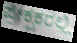
ಪ್ರೇಕ್ಷಕರಲ್ಲಿ